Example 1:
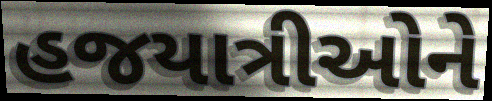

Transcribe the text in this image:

હજયાત્રીઓને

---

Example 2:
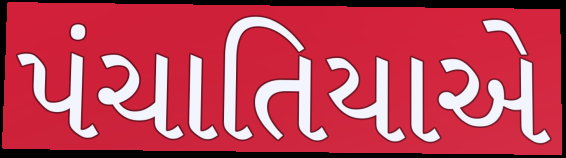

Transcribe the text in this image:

પંચાતિયાએ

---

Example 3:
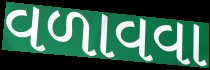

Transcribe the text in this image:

વળાવવા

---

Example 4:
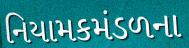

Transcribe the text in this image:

નિયામકમંડળના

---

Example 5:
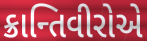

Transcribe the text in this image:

ક્રાન્તિવીરોએ